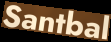
Santbal